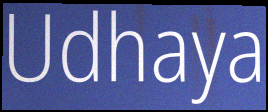
Udhaya